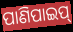
ପାଣିପାଇପ୍